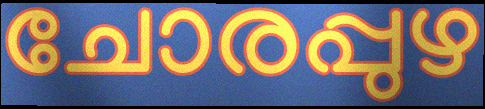
ചോരപ്പുഴ